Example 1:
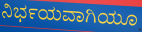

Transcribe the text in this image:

ನಿರ್ಭಯವಾಗಿಯೂ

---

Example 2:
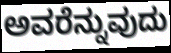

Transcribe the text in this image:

ಅವರೆನ್ನುವುದು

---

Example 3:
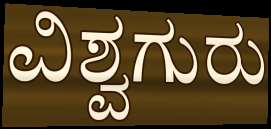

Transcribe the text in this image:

ವಿಶ್ವಗುರು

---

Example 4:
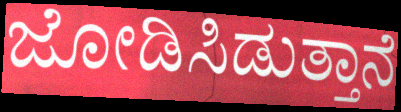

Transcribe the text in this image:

ಜೋಡಿಸಿಡುತ್ತಾನೆ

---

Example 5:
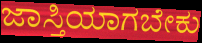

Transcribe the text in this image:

ಜಾಸ್ತಿಯಾಗಬೇಕು